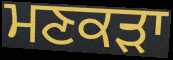
ਮਣਕੜਾ